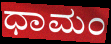
ಧಾಮಂ